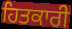
ਹਿਤਕਾਰੀ